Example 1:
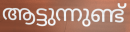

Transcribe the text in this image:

ആട്ടുന്നുണ്ട്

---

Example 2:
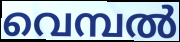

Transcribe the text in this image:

വെമ്പൽ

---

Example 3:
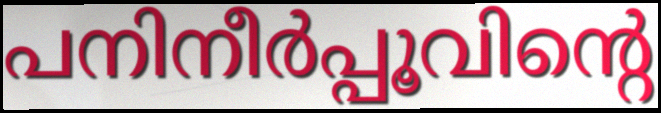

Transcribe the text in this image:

പനിനീർപ്പൂവിന്റെ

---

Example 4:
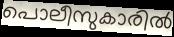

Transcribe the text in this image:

പൊലീസുകാരിൽ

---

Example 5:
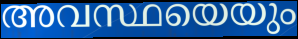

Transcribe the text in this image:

അവസ്ഥയെയും